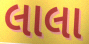
લાલા